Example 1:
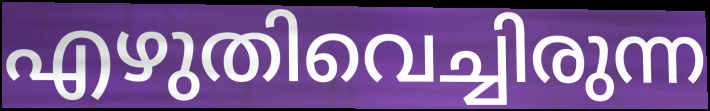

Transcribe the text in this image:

എഴുതിവെച്ചിരുന്ന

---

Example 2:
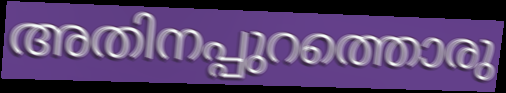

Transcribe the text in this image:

അതിനപ്പുറത്തൊരു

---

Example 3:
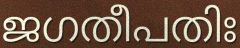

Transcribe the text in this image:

ജഗതീപതിഃ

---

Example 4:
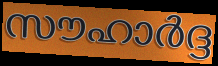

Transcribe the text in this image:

സൗഹാർദ്ദ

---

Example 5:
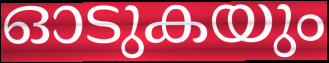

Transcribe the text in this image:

ഓടുകയും